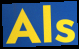
Als